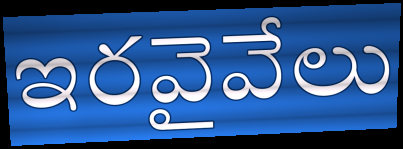
ఇరవైవేలు